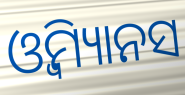
ଓ୍ବିମ୍ୟାନସ